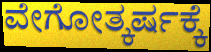
ವೇಗೋತ್ಕರ್ಷಕ್ಕೆ